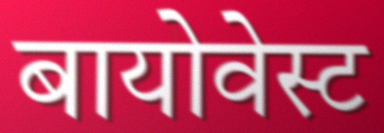
बायोवेस्ट